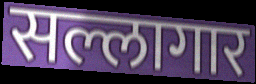
सल्‍लागार